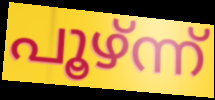
പൂഴ്ന്ന്